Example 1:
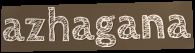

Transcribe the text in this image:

azhagana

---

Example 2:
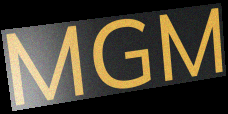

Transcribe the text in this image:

MGM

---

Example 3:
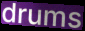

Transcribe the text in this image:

drums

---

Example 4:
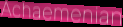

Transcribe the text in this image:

Achaemenian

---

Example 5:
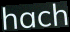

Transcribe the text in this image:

hach